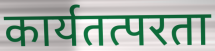
कार्यतत्परता